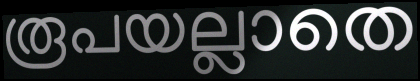
രൂപയല്ലാതെ